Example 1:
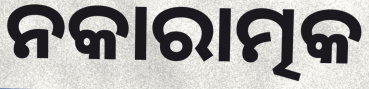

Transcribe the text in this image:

ନକାରାତ୍ମକ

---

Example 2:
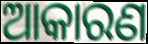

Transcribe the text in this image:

ଆକାରଣ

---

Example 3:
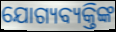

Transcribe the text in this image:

ଯୋଗ୍ୟବ୍ୟକ୍ତିଙ୍କ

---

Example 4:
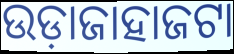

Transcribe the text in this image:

ଉଡ଼ାଜାହାଜଟା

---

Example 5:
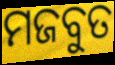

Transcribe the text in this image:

ମଜବୁତ